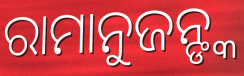
ରାମାନୁଜନ୍ଙ୍କ